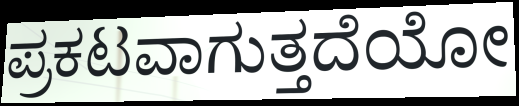
ಪ್ರಕಟವಾಗುತ್ತದೆಯೋ